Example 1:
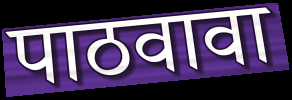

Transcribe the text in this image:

पाठवावा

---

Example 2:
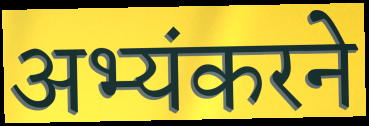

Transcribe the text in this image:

अभ्यंकरने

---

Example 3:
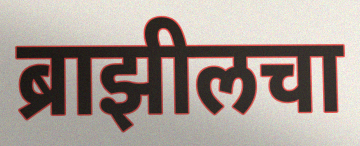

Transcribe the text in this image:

ब्राझीलचा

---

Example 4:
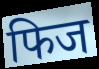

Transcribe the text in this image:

फिज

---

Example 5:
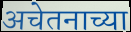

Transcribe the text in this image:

अचेतनाच्या